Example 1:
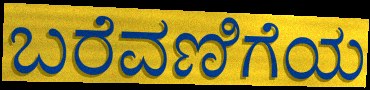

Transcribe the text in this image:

ಬರೆವಣಿಗೆಯ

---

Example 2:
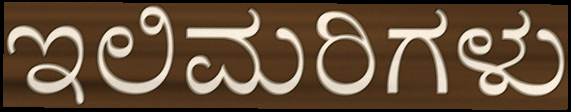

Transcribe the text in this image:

ಇಲಿಮರಿಗಳು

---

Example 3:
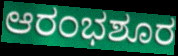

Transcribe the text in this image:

ಆರಂಭಶೂರ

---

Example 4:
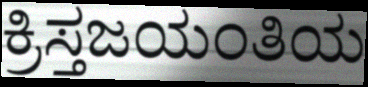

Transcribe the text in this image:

ಕ್ರಿಸ್ತಜಯಂತಿಯ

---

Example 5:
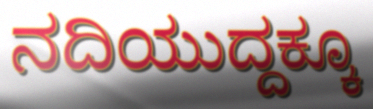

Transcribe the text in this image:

ನದಿಯುದ್ದಕ್ಕೂ